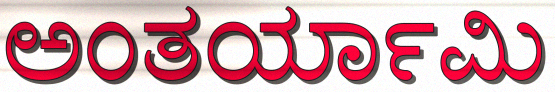
ಅಂತರ್ಯಾಮಿ